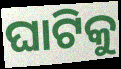
ଘାଟିକୁ